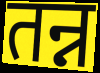
तन्न